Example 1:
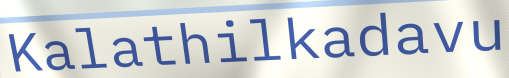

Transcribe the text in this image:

Kalathilkadavu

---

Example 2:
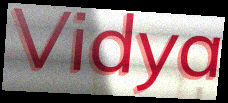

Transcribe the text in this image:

Vidya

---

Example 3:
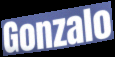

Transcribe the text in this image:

Gonzalo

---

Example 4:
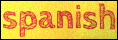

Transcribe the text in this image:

spanish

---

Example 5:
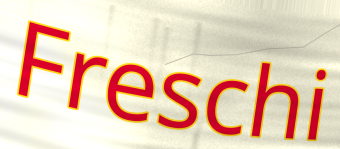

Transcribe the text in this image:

Freschi